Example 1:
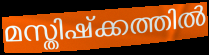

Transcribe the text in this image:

മസ്തിഷ്ക്കത്തിൽ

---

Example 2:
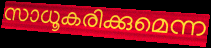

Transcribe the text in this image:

സാധൂകരിക്കുമെന്ന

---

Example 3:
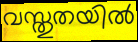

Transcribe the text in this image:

വസ്തുതയിൽ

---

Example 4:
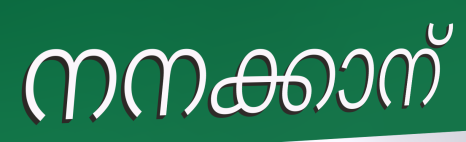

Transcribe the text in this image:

നനക്കാന്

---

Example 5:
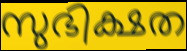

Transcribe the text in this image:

സുഭിക്ഷത